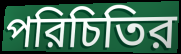
পরিচিতির